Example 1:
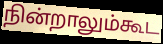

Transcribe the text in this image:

நின்றாலும்கூட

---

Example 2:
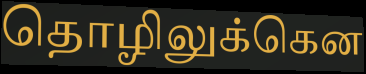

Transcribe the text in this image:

தொழிலுக்கென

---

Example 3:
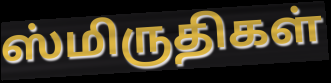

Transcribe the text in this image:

ஸ்மிருதிகள்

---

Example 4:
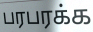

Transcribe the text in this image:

பரபரக்க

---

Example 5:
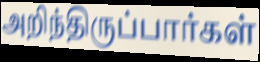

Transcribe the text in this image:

அறிந்திருப்பார்கள்